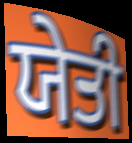
ਯੇਤੀ